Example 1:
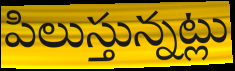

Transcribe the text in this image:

పిలుస్తున్నట్లు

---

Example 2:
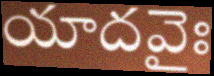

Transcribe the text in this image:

యాదవైః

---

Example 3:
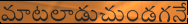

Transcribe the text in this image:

మాటలాడుచుండగనే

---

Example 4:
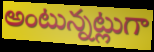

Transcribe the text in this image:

అంటున్నట్లుగా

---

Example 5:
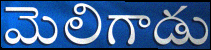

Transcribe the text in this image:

మెలిగాడు